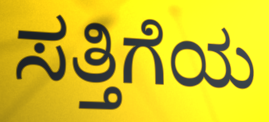
ಸತ್ತಿಗೆಯ